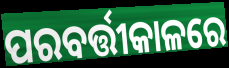
ପରବର୍ତ୍ତୀକାଳରେ